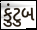
કુંટુબ